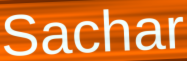
Sachar